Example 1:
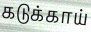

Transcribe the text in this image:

கடுக்காய்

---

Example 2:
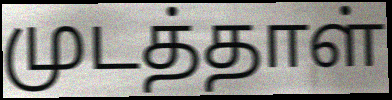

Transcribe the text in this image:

முடத்தாள்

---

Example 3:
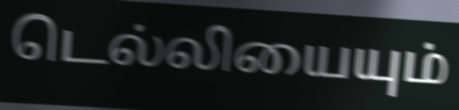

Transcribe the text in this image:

டெல்லியையும்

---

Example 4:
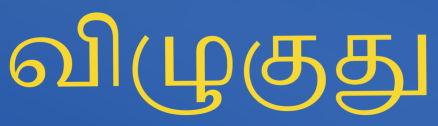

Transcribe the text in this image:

விழுகுது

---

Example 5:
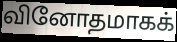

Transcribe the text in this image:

வினோதமாகக்